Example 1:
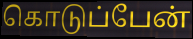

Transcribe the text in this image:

கொடுப்பேன்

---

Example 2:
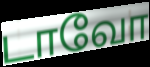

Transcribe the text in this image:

டாவோ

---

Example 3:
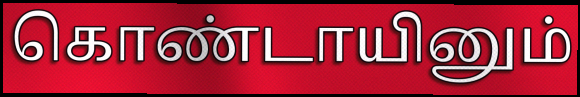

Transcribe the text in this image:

கொண்டாயினும்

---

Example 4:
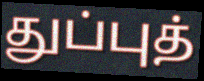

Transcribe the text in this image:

துப்புத்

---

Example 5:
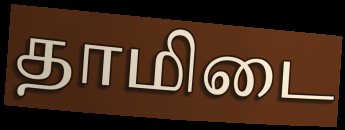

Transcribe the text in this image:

தாமிடை